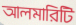
আলমারিটি